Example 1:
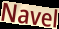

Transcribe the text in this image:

Navel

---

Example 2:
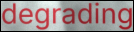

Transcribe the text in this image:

degrading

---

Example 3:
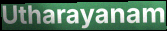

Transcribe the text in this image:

Utharayanam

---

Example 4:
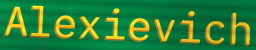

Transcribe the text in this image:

Alexievich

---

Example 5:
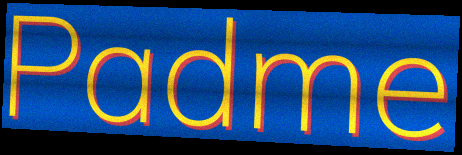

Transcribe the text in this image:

Padme